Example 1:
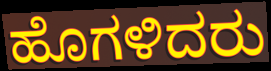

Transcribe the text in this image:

ಹೊಗಳಿದರು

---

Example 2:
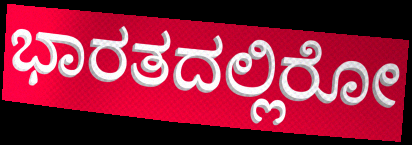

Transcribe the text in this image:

ಭಾರತದಲ್ಲಿರೋ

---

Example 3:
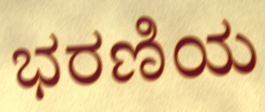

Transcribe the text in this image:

ಭರಣಿಯ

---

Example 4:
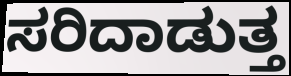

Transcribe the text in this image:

ಸರಿದಾಡುತ್ತ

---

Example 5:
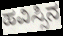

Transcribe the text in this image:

ಹವಿಸ್ಸಿನ